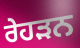
ਰੇਹੜਨ